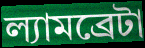
ল্যামব্রেটা